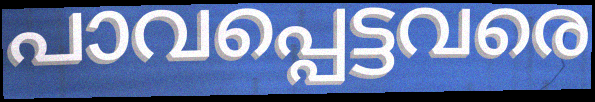
പാവപ്പെട്ടവരെ